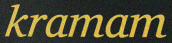
kramam